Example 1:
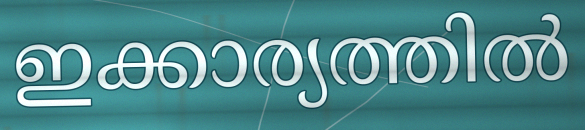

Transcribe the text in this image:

ഇക്കാര്യത്തിൽ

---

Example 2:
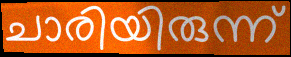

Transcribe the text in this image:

ചാരിയിരുന്ന്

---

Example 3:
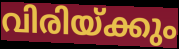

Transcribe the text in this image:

വിരിയ്ക്കും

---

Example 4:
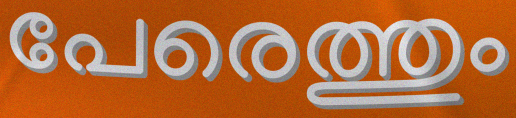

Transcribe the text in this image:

പേരെത്തും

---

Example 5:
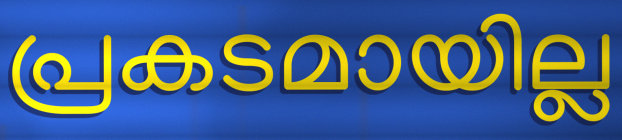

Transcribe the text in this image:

പ്രകടമായില്ല